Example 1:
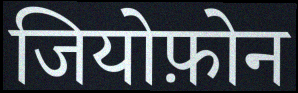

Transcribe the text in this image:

जियोफ़ोन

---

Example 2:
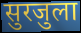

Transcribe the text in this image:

सुरजुला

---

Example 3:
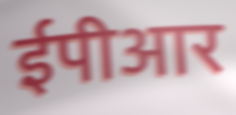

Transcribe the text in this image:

ईपीआर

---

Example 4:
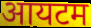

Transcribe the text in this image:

आयटम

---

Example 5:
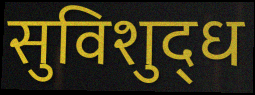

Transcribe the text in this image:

सुविशुद्ध